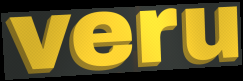
veru